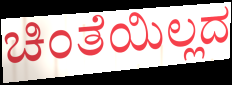
ಚಿಂತೆಯಿಲ್ಲದ